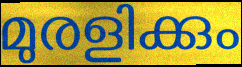
മുരളിക്കും